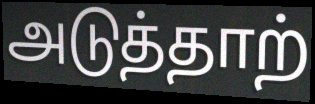
அடுத்தாற்